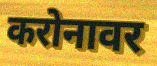
करोनावर